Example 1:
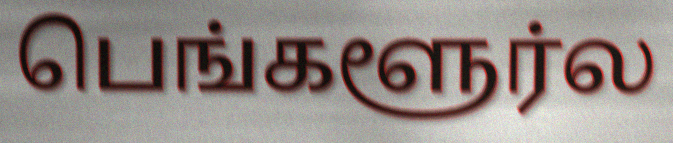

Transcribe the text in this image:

பெங்களூர்ல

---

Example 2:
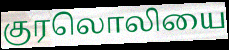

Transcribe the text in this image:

குரலொலியை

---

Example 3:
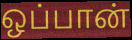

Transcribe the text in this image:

ஒப்பான்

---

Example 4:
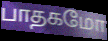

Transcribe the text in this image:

பாதகமோ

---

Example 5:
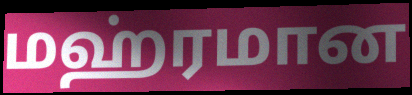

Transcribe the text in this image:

மஹ்ரமான